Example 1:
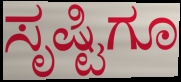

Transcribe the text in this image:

ಸೃಷ್ಟಿಗೂ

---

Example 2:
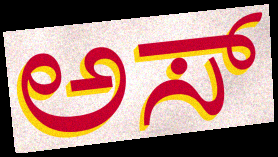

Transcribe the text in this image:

ಅಸ್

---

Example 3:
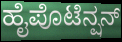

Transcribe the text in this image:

ಹೈಪೊಟೆನ್ಷನ್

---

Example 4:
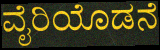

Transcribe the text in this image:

ವೈರಿಯೊಡನೆ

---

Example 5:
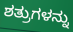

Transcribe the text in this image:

ಶತ್ರುಗಳನ್ನು